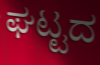
ಘಟ್ಟದ